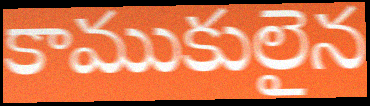
కాముకులైన